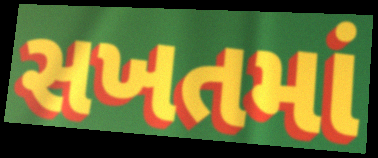
સખતમાં